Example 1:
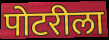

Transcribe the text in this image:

पोटरीला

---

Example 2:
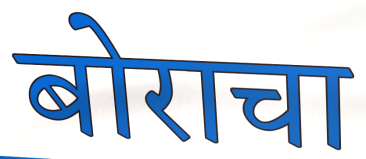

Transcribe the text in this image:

बोराचा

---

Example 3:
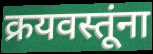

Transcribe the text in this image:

क्रयवस्तूंना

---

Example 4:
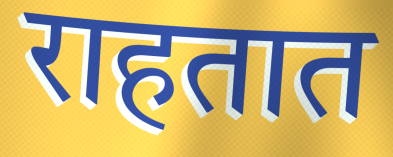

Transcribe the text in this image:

राहतात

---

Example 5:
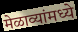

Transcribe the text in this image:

मेळाव्यांमध्ये